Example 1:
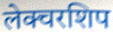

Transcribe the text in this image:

लेक्चरशिप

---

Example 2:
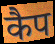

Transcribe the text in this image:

कैप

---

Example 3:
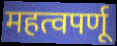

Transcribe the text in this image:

महत्‍वपर्णू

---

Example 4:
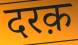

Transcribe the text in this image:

दरक़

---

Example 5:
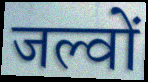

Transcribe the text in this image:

जल्वों